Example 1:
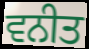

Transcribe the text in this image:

ਵਨੀਤ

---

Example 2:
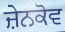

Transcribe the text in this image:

ਜ਼ੇਨਕੋਵ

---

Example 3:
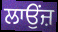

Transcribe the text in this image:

ਲਾਉਂਜ਼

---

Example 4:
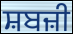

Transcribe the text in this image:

ਸ਼ਬਜ਼ੀ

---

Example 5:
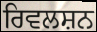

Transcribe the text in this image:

ਰਿਵਲਸ਼ਨ